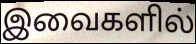
இவைகளில்